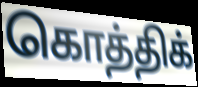
கொத்திக்